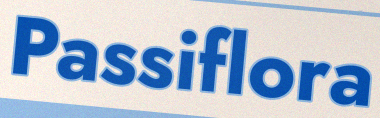
Passiflora